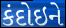
કંદોઇને